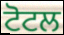
ਟੋਟਲ